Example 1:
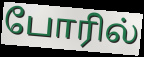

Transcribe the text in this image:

போரில்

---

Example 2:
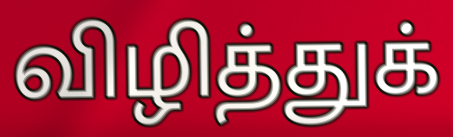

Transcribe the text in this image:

விழித்துக்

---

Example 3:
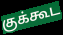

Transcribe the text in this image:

குக்கூட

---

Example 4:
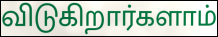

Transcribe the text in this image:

விடுகிறார்களாம்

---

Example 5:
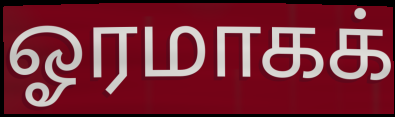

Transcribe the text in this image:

ஓரமாகக்